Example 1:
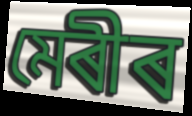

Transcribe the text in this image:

মেৰীৰ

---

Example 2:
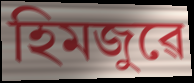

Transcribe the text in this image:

হিমজুৱে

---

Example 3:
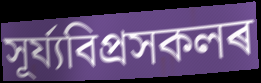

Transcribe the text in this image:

সূৰ্য্যবিপ্ৰসকলৰ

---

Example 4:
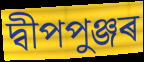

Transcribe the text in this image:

দ্বীপপুঞ্জৰ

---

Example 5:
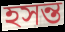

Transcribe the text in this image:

হসন্ত